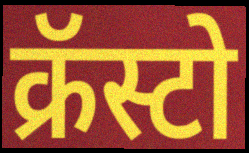
क्रॅस्टो